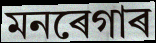
মনৰেগাৰ